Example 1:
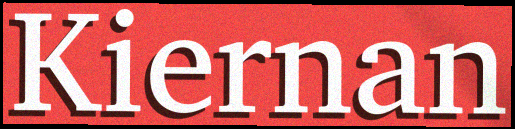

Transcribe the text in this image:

Kiernan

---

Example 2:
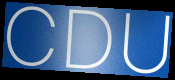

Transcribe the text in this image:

CDU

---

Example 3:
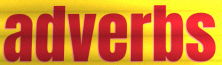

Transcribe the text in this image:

adverbs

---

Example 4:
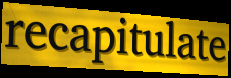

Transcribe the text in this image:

recapitulate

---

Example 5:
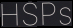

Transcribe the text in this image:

HSPs